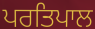
ਪਰਤਿਪਾਲ